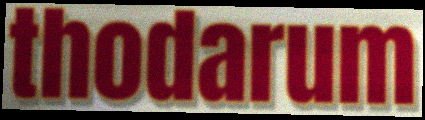
thodarum